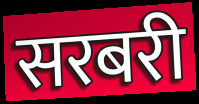
सरबरी